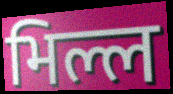
भिल्ल